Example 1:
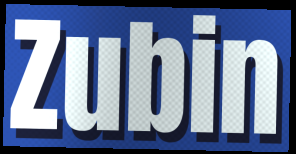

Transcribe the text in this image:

Zubin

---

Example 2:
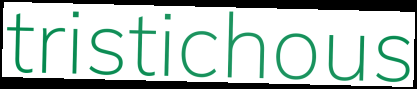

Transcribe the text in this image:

tristichous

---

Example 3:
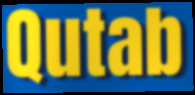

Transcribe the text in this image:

Qutab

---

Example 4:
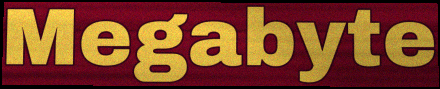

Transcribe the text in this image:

Megabyte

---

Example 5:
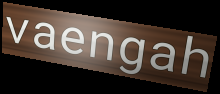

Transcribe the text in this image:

vaengah